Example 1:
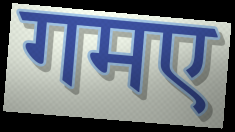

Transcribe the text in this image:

गमए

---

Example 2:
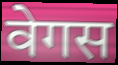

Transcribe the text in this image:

वेगस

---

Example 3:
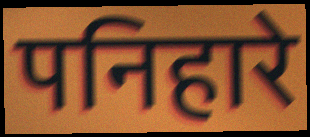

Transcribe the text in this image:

पनिहारे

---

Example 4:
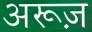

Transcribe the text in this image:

अरूज़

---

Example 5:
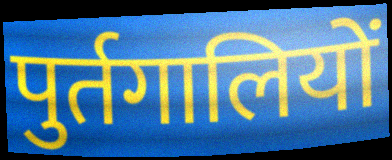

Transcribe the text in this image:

पुर्तगालियों